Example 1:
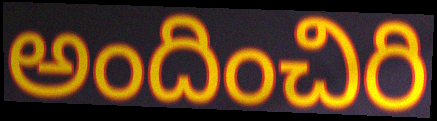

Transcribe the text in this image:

అందించిరి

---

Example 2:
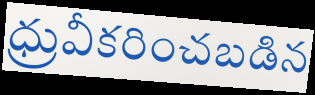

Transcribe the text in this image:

ధ్రువీకరించబడిన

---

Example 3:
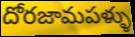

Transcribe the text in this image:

దోరజామపళ్ళు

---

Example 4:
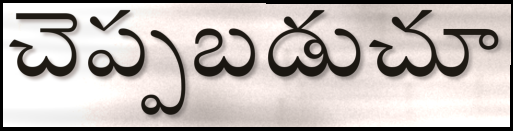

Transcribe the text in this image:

చెప్పబడుచూ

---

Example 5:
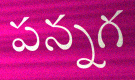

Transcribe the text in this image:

పన్నగ